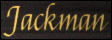
Jackman